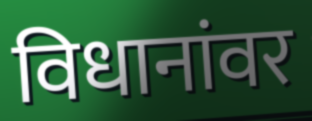
विधानांवर